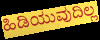
ಹಿಡಿಯುವುದಿಲ್ಲ